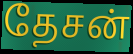
தேசன்